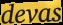
devas